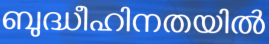
ബുദ്ധീഹിനതയിൽ